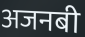
अजनबी